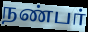
நண்பர்